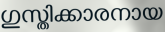
ഗുസ്തിക്കാരനായ